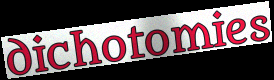
dichotomies